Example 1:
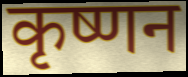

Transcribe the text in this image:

कृष्णन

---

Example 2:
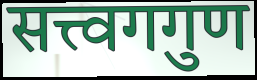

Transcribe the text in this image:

सत्त्वगगुण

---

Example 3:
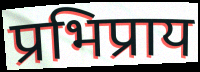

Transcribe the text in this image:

प्रभिप्राय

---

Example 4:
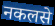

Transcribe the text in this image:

नकलसे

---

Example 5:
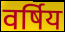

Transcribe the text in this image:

वर्षिय